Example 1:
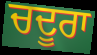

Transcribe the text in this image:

ਚਦੂਰਾ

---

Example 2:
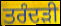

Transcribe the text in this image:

ਤਰੰਦੜੀ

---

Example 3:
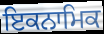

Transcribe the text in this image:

ਇਕਨਾਮਿਕ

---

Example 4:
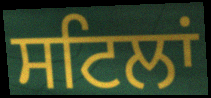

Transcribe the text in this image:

ਸਟਿਲਾਂ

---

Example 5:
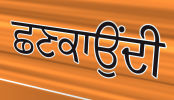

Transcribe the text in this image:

ਛਣਕਾਉਂਦੀ